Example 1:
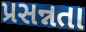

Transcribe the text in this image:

પ્રસન્નતા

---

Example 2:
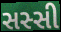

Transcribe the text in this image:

સસ્સી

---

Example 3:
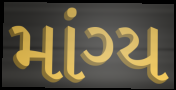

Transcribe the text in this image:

માંગ્ય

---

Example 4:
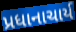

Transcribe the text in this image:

પ્રધાનાચાર્ય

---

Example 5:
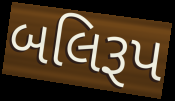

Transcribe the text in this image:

બલિરૂપ